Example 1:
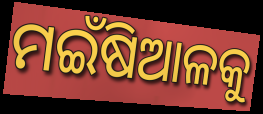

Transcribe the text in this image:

ମଇଁଷିଆଳକୁ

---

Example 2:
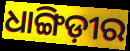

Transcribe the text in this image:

ଧାଙ୍ଗିଡ଼ୀର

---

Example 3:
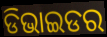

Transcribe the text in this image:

ଡିଭାଇଡର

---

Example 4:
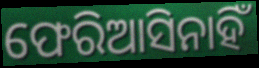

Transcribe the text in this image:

ଫେରିଆସିନାହିଁ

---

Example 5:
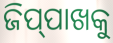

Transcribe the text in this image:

ଜିପ୍‌ପାଖକୁ